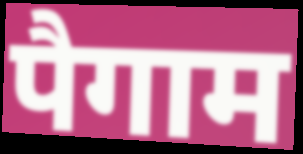
पैगाम